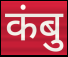
कंबु